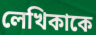
লেখিকাকে